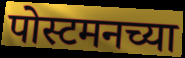
पोस्टमनच्या